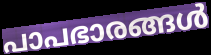
പാപഭാരങ്ങൾ